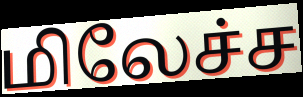
மிலேச்ச